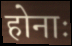
होनाः